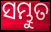
ସମ୍ଭୁତ